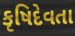
કૃષિદેવતા